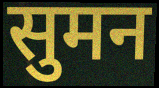
सुमन